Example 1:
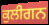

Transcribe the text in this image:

ਕੁਲੀਗਨ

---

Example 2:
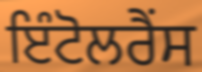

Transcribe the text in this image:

ਇੰਟੋਲਰੈਂਸ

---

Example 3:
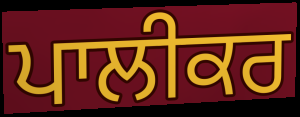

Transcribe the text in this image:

ਪਾਲੀਕਰ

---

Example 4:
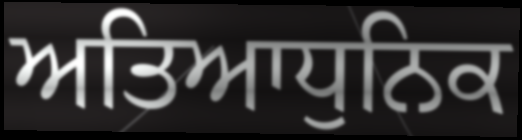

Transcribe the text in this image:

ਅਤਿਆਧੁਨਿਕ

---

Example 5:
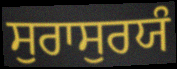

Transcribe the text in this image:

ਸੁਰਾਸੁਰਯੰ